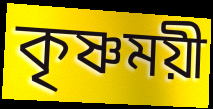
কৃষ্ণময়ী